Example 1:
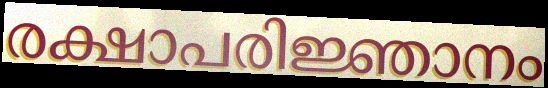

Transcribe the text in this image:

രക്ഷാപരിജ്ഞാനം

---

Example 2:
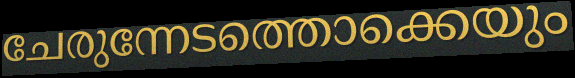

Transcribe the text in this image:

ചേരുന്നേടത്തൊക്കെയും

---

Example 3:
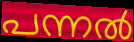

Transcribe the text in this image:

പന്നൽ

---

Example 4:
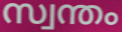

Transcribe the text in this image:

സ്വന്തം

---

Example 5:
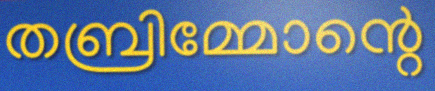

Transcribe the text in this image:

തബ്രിമ്മോന്റെ